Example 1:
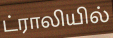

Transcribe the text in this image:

ட்ராலியில்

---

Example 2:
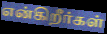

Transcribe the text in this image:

என்கிறீர்கள்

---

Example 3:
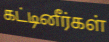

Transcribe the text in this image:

கட்டினீர்கள்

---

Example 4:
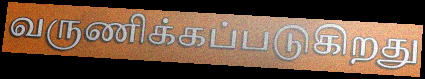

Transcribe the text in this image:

வருணிக்கப்படுகிறது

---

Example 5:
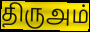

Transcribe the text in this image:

திருஅம்